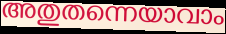
അതുതന്നെയാവാം